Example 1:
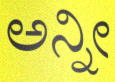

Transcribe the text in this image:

ಅನ್ನೀ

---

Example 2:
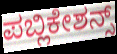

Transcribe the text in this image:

ಪಬ್ಲಿಕೇಶನ್ಸ್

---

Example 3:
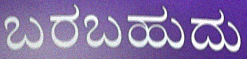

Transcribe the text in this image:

ಬರಬಹುದು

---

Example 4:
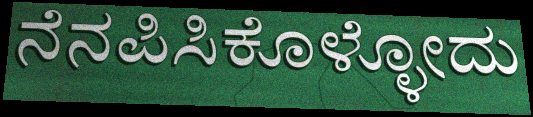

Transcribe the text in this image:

ನೆನಪಿಸಿಕೊಳ್ಳೋದು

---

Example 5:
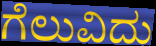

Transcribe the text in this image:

ಗೆಲುವಿದು